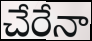
చేరేనా